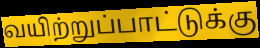
வயிற்றுப்பாட்டுக்கு